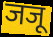
जजू